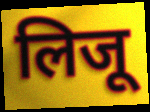
लिजू